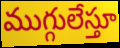
ముగ్గులేస్తూ